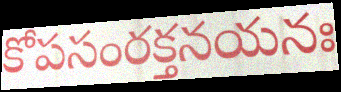
కోపసంరక్తనయనః